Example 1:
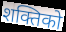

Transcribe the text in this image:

शक्तिको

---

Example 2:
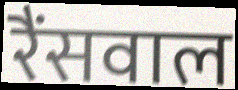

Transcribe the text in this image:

रैंसवाल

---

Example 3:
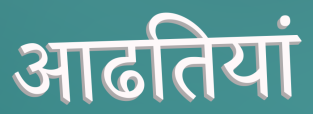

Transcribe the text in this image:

आढतियां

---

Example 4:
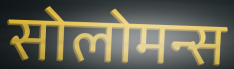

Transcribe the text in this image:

सोलोमन्स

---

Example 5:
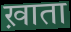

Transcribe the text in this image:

ख़ाता